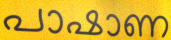
പാഷാണ